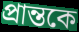
প্রান্তকে